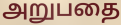
அறுபதை